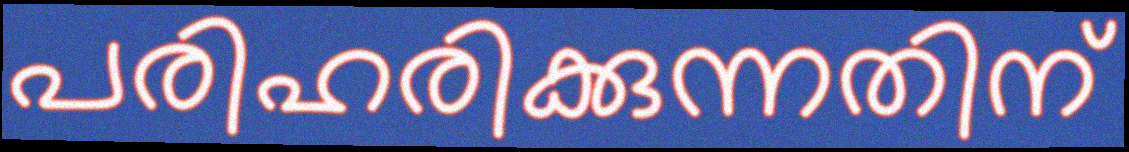
പരിഹരിക്കുന്നതിന്